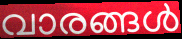
വാരങ്ങൾ